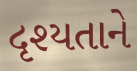
દૃશ્યતાને